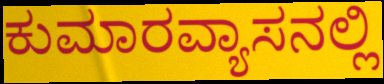
ಕುಮಾರವ್ಯಾಸನಲ್ಲಿ